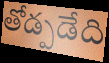
తోడ్పడేది